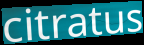
citratus